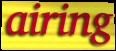
airing